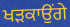
ਖੜਕਾਉਂਗੇ